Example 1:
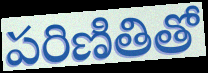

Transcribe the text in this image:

పరిణితితో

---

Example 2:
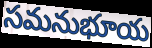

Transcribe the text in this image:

సమనుభూయ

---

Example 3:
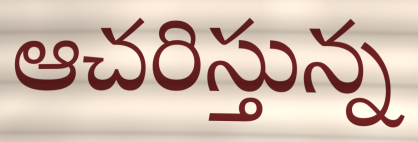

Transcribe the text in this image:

ఆచరిస్తున్న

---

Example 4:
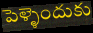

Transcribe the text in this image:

పెళ్ళెందుకు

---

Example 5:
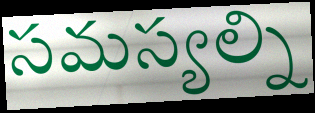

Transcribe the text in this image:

సమస్యల్ని